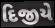
દિજીયે